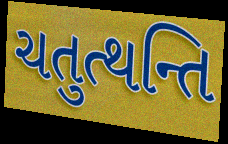
ચતુત્થન્તિ